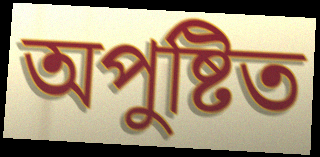
অপুষ্টিত